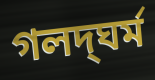
গলদ্‌ঘর্ম